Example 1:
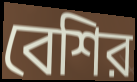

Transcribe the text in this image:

বেশির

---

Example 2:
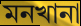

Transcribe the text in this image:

মনখানা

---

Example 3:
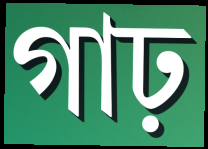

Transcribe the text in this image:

গাঢ়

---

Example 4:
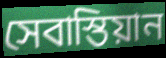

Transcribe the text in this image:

সেবাস্তিয়ান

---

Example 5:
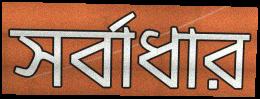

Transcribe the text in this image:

সর্বাধার